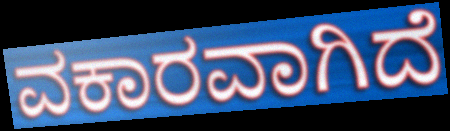
ವಕಾರವಾಗಿದೆ